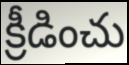
క్రీడించు